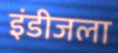
इंडीजला